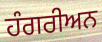
ਹੰਗਰੀਅਨ